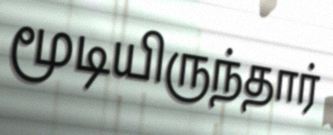
மூடியிருந்தார்